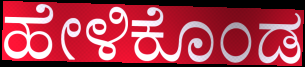
ಹೇಳಿಕೊಂಡ